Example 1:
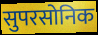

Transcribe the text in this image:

सुपरसोनिक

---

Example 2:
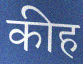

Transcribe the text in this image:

कीह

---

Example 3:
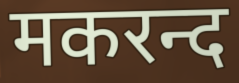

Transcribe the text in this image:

मकरन्द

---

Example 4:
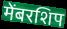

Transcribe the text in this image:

मेंबरशिप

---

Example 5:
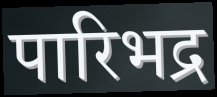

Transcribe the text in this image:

पारिभद्र